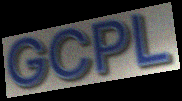
GCPL